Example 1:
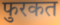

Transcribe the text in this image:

फुरकत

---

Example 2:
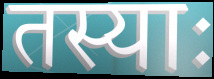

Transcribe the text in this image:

तस्याः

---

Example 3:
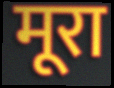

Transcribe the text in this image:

मूरा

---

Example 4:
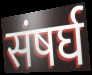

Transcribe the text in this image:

संषर्घ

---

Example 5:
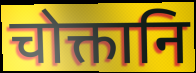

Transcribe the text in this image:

चोक्तानि